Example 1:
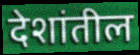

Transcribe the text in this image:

देशांतील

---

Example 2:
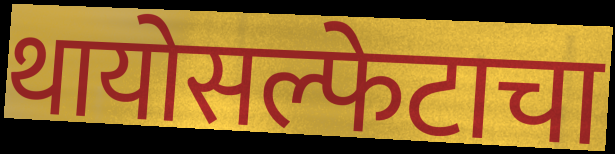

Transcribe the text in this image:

थायोसल्फेटाचा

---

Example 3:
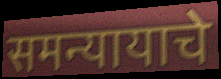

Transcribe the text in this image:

समन्यायाचे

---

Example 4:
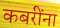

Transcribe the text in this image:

कबरींना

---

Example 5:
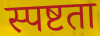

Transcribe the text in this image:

स्पष्टता